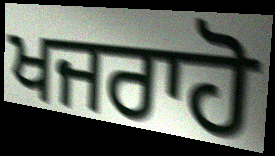
ਖਜਰਾਹੋ